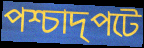
পশ্চাদ্‌পটে